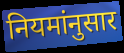
नियमांनुसार